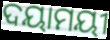
ଦୟାମୟୀ